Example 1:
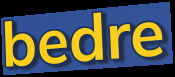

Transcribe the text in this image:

bedre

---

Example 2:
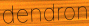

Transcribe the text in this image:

dendron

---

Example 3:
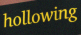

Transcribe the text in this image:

hollowing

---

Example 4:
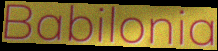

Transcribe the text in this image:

Babilonia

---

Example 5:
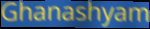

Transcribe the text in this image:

Ghanashyam